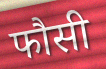
फौसी